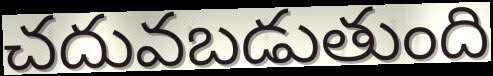
చదువబడుతుంది